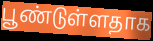
பூண்டுள்ளதாக